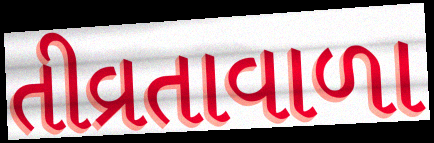
તીવ્રતાવાળા